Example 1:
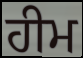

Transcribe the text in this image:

ਹੀਮ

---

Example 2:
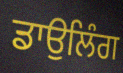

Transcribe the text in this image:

ਡਾਉਲਿੰਗ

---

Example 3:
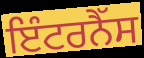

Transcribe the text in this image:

ਇੰਟਰਨੈੱਸ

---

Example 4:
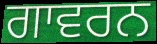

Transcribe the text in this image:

ਗਾਵਰਨ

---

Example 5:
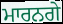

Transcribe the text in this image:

ਮਾਰਨਗੇ